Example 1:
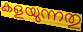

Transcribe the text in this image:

കളയുന്നതു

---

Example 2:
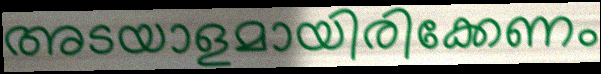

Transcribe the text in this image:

അടയാളമായിരിക്കേണം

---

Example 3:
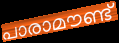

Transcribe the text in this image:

പാരാമൗണ്ട്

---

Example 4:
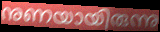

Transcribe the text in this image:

നുണയായിരുന്നു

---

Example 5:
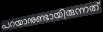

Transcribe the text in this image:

പറയാനുണ്ടായിരുന്നത്